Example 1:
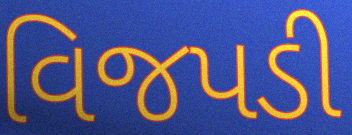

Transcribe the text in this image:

વિજપડી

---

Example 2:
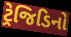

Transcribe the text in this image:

ટ્રેજિડિનો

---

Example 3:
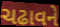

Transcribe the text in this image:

ચઢાવને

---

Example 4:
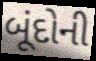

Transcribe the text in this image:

બૂંદોની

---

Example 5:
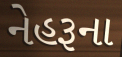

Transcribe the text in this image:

નેહરૂના